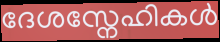
ദേശസ്നേഹികൾ